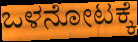
ಒಳನೋಟಕ್ಕೆ